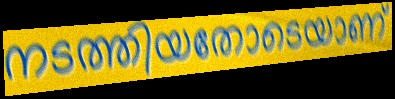
നടത്തിയതോടെയാണ്